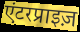
एंटरप्राइज़